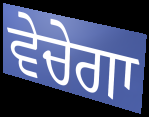
ਵੇਚੇਗਾ